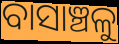
ବାସାଞ୍ଚଳୁ